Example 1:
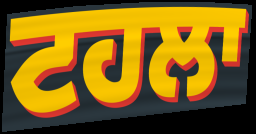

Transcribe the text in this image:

ਟਹਲਾ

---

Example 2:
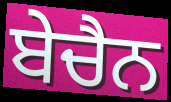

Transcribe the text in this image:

ਬੇਚੈਨ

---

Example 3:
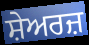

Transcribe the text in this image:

ਸ਼ੇਅਰਜ਼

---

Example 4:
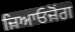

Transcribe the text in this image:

ਜ਼ਿਆਓਜ਼ੋਂਗ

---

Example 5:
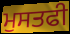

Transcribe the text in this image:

ਮੁਸਤਫੀ